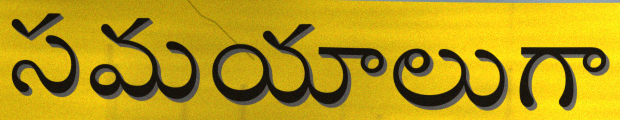
సమయాలుగా